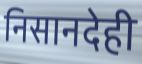
निसानदेही